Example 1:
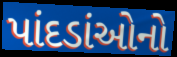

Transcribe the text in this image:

પાંદડાંઓનો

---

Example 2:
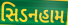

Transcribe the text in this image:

સિડનહામ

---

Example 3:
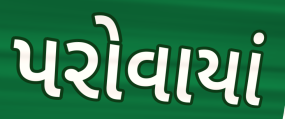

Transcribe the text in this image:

પરોવાયાં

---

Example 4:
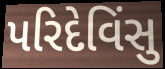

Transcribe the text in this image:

પરિદેવિંસુ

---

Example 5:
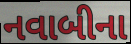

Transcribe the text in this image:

નવાબીના